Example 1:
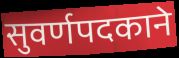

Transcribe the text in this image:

सुवर्णपदकाने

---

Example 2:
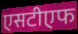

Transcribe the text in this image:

एसटीएफ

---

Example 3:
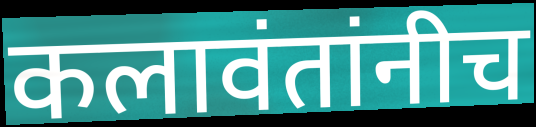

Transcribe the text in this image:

कलावंतांनीच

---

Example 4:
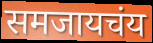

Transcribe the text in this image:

समजायचंय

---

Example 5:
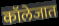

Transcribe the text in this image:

कॉलेजात